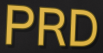
PRD